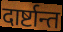
दार्ष्टान्त